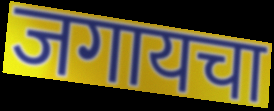
जगायचा